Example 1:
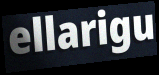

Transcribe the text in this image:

ellarigu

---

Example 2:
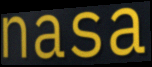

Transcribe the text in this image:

nasa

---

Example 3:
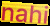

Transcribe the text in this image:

nahi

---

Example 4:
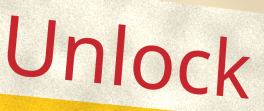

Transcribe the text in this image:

Unlock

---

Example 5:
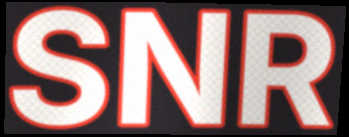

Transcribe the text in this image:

SNR